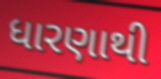
ધારણાથી